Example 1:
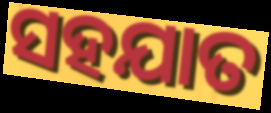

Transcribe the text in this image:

ସହଯାତ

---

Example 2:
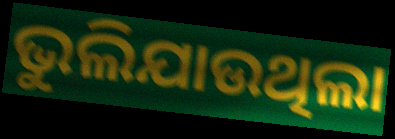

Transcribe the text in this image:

ଭୁଲିଯାଉଥିଲା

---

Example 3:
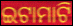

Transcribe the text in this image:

ଇଟାମାଟି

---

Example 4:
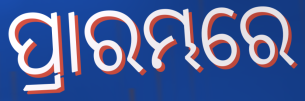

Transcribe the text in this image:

ପ୍ରାରମ୍ଭରେ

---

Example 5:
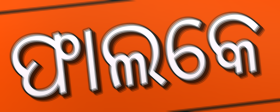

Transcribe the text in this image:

ଫାଲକେ